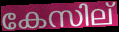
കേസില്